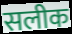
सलीक